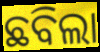
ଛବିଲା